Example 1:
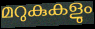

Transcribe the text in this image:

മറുകുകളും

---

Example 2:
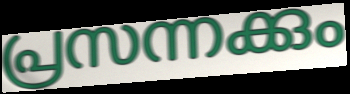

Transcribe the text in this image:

പ്രസന്നക്കും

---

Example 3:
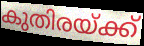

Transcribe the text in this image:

കുതിരയ്ക്ക്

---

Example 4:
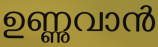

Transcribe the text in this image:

ഉണ്ണുവാൻ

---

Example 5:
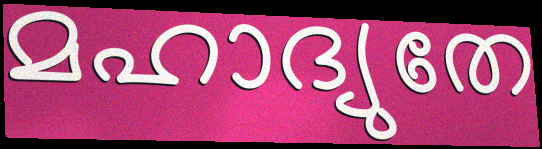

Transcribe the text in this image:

മഹാദ്യുതേ